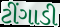
ટીંગાડી